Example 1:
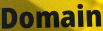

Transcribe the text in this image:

Domain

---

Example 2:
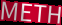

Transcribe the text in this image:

METH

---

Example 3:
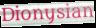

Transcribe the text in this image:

Dionysian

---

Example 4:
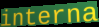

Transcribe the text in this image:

interna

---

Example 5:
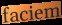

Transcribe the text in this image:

faciem